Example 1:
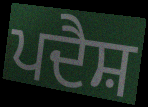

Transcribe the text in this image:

ਪਦੈਸ਼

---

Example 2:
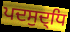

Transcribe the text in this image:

ਪਦਸੁਦ੍ਧਿ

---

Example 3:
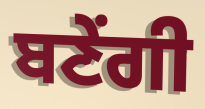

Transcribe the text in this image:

ਬਣੇਂਗੀ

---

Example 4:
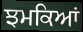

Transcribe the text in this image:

ਝਮਕਿਆਂ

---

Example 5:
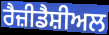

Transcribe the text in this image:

ਰੈਜ਼ੀਡੈਸ਼ੀਅਲ